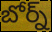
బోర్న్